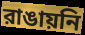
রাঙায়নি